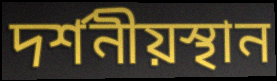
দর্শনীয়স্থান